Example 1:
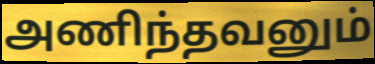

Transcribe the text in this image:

அணிந்தவனும்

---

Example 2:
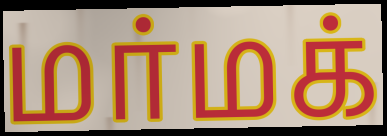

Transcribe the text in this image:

மர்மக்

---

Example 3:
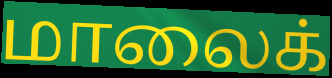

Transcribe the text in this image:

மாலைக்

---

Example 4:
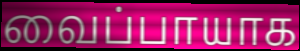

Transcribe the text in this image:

வைப்பாயாக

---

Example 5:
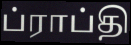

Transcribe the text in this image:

ப்ராப்தி